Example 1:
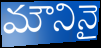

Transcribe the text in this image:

మౌనినై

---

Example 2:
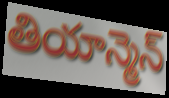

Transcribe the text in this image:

తియాన్మెన్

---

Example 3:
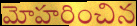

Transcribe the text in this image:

మోహరించిన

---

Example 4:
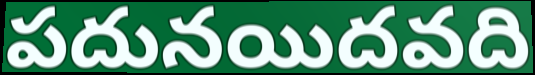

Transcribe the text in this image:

పదునయిదవది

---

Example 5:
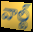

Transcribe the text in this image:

వాల్ట్